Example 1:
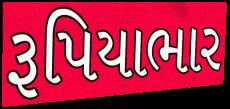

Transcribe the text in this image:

રૂપિયાભાર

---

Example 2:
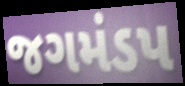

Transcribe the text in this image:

જગમંડપ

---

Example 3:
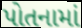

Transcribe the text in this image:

પોતનામાં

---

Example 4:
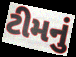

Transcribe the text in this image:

ટીમનું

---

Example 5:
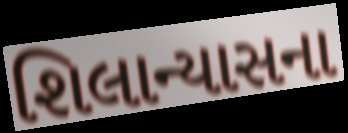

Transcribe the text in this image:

શિલાન્યાસના